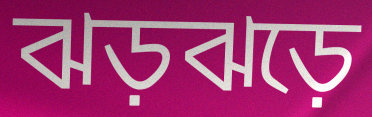
ঝড়ঝড়ে